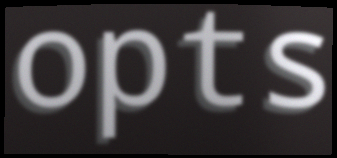
opts